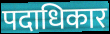
पदाधिकार